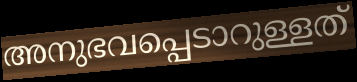
അനുഭവപ്പെടാറുള്ളത്